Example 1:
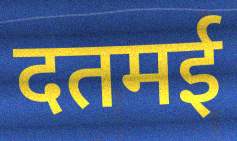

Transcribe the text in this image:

दतमई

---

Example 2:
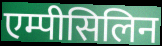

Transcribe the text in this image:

एम्पीसिलिन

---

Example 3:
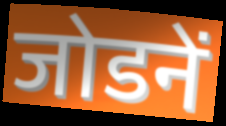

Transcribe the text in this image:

जोडनें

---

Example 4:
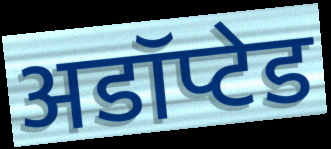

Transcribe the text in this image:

अडॉप्टेड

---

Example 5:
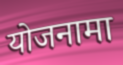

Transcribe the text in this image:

योजनामा